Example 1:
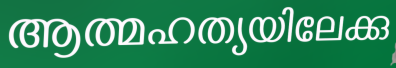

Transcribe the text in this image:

ആത്മഹത്യയിലേക്കു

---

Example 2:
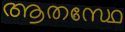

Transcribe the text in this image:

ആതസ്ഥേ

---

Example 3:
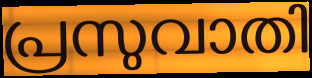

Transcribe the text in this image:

പ്രസുവാതി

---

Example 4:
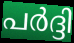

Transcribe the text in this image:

പർദ്ദി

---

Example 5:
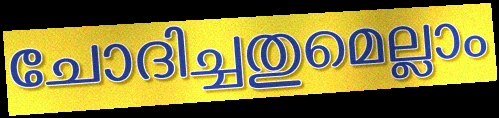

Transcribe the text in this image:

ചോദിച്ചതുമെല്ലാം